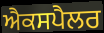
ਐਕਸਪੈਲਰ